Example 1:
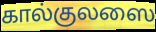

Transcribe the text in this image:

கால்குலஸை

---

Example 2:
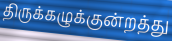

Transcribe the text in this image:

திருக்கழுக்குன்றத்து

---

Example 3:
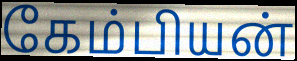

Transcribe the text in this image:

கேம்பியன்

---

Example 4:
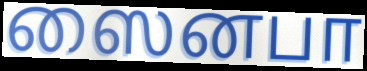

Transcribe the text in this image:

ஸைனபா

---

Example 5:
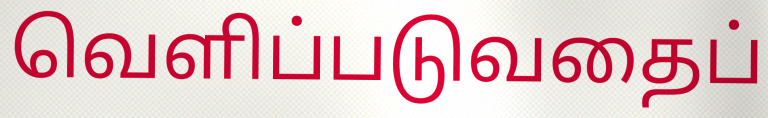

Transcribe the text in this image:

வெளிப்படுவதைப்